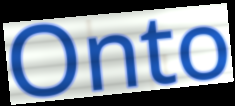
Onto